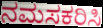
ನಮಸಕರಿಸಿ